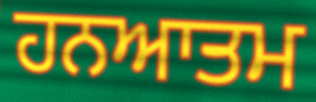
ਹਨਆਤਮ